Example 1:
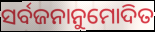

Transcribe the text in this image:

ସର୍ବଜନାନୁମୋଦିତ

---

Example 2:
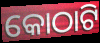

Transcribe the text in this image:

କୋଠାଟି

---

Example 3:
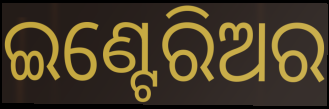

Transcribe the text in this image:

ଇଣ୍ଟେରିଅର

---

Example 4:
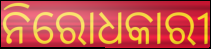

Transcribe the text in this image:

ନିରୋଧକାରୀ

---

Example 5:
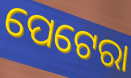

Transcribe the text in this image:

ପେଟେରା